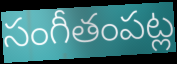
సంగీతంపట్ల